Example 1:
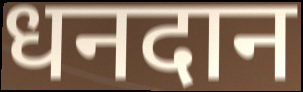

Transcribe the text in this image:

धनदान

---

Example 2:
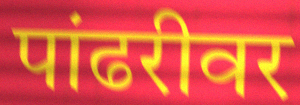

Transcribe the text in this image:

पांढरीवर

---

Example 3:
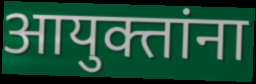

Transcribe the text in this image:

आयुक्तांना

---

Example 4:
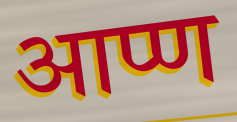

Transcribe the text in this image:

आप्ण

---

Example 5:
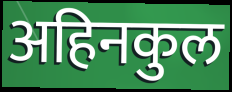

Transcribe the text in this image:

अहिनकुल